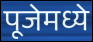
पूजेमध्ये